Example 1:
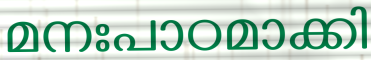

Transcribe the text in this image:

മനഃപാഠമാക്കി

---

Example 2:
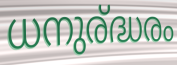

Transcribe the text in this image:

ധനുര്ദ്ധരം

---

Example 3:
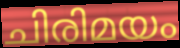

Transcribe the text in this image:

ചിരിമയം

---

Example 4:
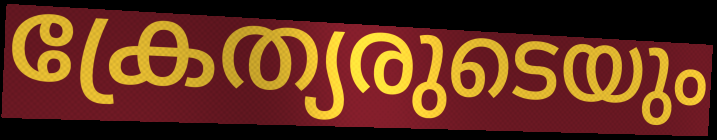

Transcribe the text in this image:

ക്രേത്യരുടെയും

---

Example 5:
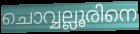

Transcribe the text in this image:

ചൊവ്വല്ലൂരിനെ